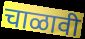
चाळावी